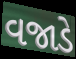
વજાડે